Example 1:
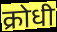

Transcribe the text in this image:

क्रोधी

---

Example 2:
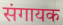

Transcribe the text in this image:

संगायक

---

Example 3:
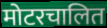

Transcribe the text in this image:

मोटरचालित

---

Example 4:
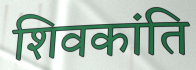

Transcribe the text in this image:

शिवकांति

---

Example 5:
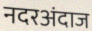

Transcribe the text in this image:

नदरअंदाज